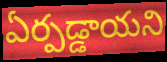
ఏర్పడ్డాయని